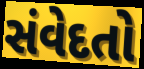
સંવેદતો